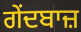
ਗੇਂਦਬਾਜ਼